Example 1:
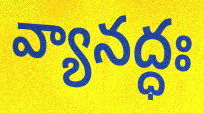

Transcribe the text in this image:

వ్యానద్ధః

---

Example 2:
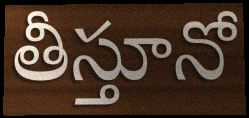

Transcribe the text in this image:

తీస్తూనో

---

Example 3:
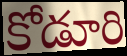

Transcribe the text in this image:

కోడూరి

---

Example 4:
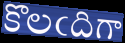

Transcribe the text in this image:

కొలఁదిగా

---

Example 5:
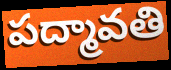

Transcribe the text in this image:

పద్మావతి